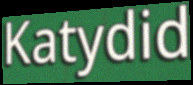
Katydid